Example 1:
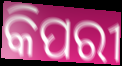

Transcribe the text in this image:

କିପରୀ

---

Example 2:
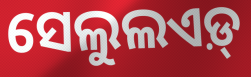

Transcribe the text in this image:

ସେଲୁଲଏଡ଼୍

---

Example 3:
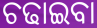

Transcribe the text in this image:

ଚଢାଇବା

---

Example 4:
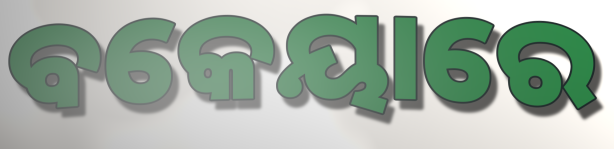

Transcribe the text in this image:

ବକେୟାରେ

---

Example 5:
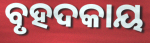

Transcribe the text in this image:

ବୃହଦକାୟ